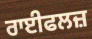
ਰਾਈਫਲਜ਼